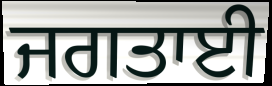
ਜਗਤਾਈ